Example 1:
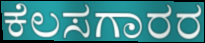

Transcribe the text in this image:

ಕೆಲಸಗಾರರ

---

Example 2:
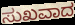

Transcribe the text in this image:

ಸುಖವಾದ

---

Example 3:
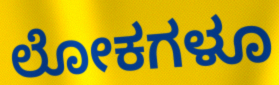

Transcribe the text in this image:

ಲೋಕಗಳೂ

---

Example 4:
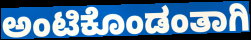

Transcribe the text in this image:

ಅಂಟಿಕೊಂಡಂತಾಗಿ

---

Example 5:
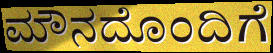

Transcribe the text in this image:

ಮೌನದೊಂದಿಗೆ